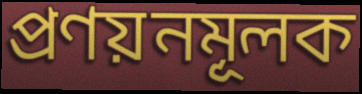
প্রণয়নমূলক